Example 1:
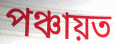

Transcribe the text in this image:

পঞ্চায়ত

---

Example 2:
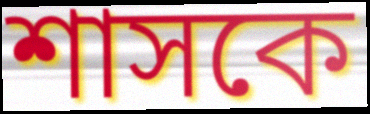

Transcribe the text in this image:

শাসকে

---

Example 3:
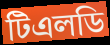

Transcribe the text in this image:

টিএলডি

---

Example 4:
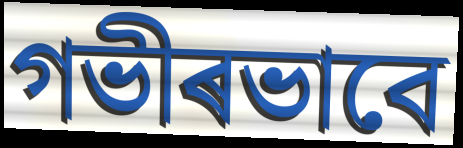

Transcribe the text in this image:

গভীৰভাবে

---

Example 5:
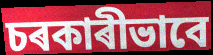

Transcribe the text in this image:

চৰকাৰীভাবে